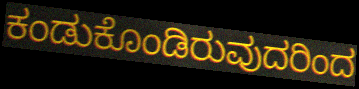
ಕಂಡುಕೊಂಡಿರುವುದರಿಂದ